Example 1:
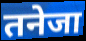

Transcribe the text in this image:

तनेजा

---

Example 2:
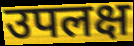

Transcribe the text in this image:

उपलक्ष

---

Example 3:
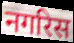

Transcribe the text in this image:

नगरिस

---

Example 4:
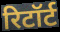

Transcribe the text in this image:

रिटॉर्ट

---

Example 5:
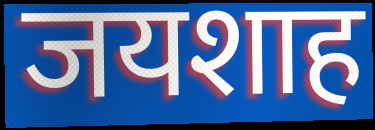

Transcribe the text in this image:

जयशाह